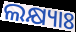
ଲକ୍ଷ୍ୟାଃ